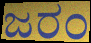
ಜರಂ